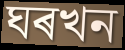
ঘৰখন